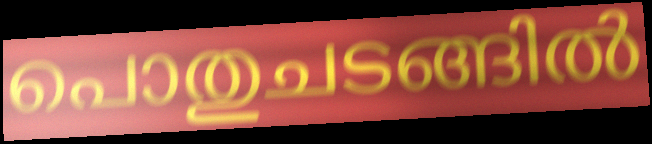
പൊതുചടങ്ങിൽ